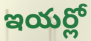
ఇయర్లో